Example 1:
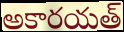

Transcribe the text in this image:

అకారయత్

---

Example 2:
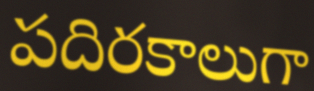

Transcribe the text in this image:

పదిరకాలుగా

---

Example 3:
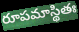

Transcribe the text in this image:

రూపమాస్థితః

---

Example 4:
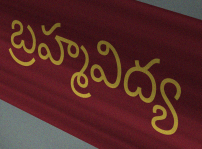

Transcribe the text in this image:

బ్రహ్మవిద్య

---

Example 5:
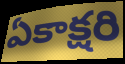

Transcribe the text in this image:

ఏకాక్షరి